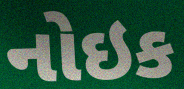
નોઇક